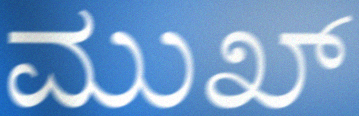
ಮುಖ್